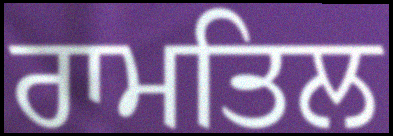
ਰਾਮਤਿਲ